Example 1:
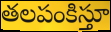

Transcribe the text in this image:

తలపంకిస్తూ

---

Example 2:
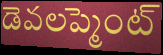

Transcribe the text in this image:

డెవలప్మెంట్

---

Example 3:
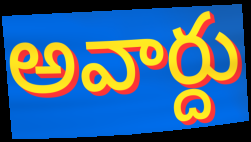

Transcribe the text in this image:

అవార్దు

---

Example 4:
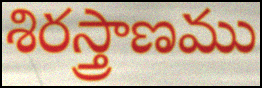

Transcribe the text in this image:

శిరస్త్రాణము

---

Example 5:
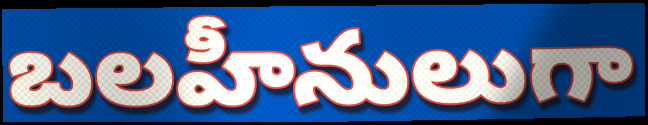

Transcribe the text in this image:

బలహీనులుగా